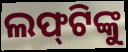
ଲଫ୍‌ଟିଙ୍କୁ